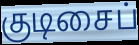
குடிசைப்